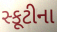
સ્કૂટીના